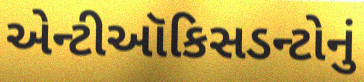
એન્ટીઑકિસડન્ટોનું